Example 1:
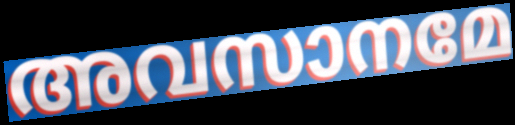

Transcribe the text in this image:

അവസാനമേ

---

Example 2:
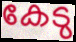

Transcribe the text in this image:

കേടു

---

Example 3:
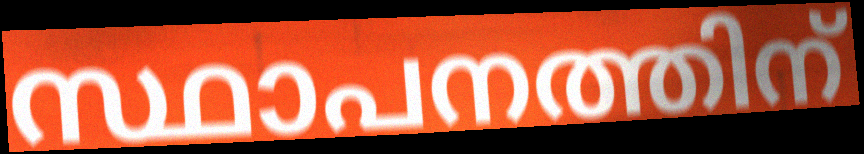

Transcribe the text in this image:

സ്ഥാപനത്തിന്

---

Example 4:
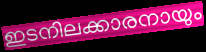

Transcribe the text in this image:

ഇടനിലക്കാരനായും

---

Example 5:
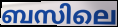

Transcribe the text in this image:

ബസിലെ